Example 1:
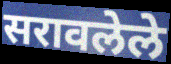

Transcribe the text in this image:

सरावलेले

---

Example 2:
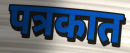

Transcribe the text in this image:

पत्रकात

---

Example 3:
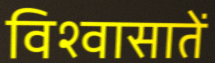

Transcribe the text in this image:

विश्वासातें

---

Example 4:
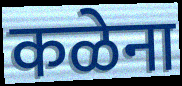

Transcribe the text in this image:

कळेना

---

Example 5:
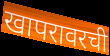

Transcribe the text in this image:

खापरावरची